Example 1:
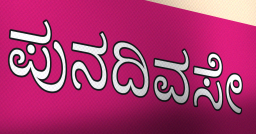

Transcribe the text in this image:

ಪುನದಿವಸೇ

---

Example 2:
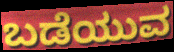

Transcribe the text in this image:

ಬಡೆಯುವ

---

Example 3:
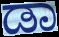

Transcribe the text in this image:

ಡಾ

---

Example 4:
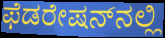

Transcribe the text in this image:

ಫೆಡರೇಷನ್‌ನಲ್ಲಿ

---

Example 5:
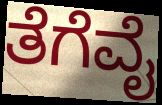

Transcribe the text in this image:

ತೆಗೆವೈ